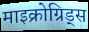
माइक्रोग्रिड्स